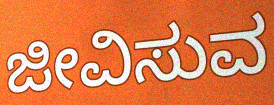
ಜೀವಿಸುವ